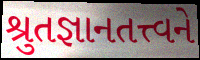
શ્રુતજ્ઞાનતત્ત્વને